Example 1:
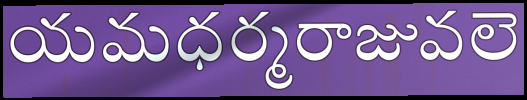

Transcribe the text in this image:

యమధర్మరాజువలె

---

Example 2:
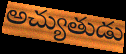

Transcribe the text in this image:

అచ్యుతుడు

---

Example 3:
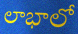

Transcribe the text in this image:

లాభాలో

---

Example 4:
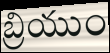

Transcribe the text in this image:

బ్రియుం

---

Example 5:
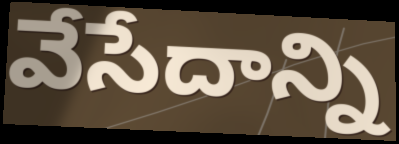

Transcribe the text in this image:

వేసేదాన్ని